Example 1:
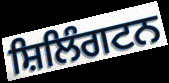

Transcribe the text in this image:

ਸ਼ਿਲਿੰਗਟਨ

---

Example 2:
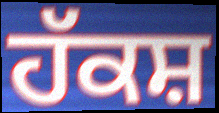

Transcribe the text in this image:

ਹੱਕਸ਼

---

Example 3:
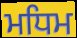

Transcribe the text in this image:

ਮਧਿਮ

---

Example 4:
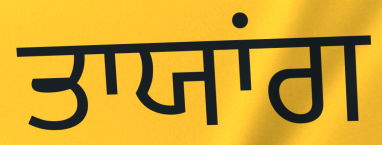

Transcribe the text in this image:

ਤਾਯਾਂਗ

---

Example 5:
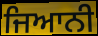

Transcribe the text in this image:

ਜਿਆਨੀ